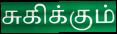
சுகிக்கும்